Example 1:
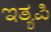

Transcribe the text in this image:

ಇತ್ಯಪಿ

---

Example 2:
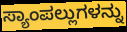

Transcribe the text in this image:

ಸ್ಯಾಂಪಲ್ಲುಗಳನ್ನು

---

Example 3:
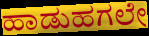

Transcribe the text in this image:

ಹಾಡುಹಗಲೇ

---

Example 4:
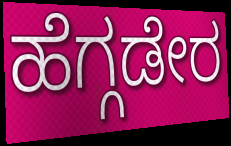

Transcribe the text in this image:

ಹೆಗ್ಗಡೇರ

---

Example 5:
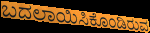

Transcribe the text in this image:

ಬದಲಾಯಿಸಿಕೊಂಡಿರುವ